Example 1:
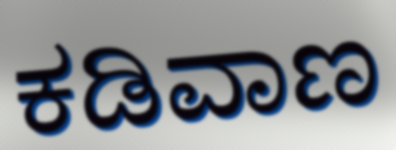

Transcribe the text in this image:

ಕಡಿವಾಣ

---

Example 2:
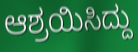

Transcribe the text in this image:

ಆಶ್ರಯಿಸಿದ್ದು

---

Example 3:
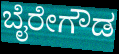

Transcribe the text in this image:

ಬೈರೇಗೌಡ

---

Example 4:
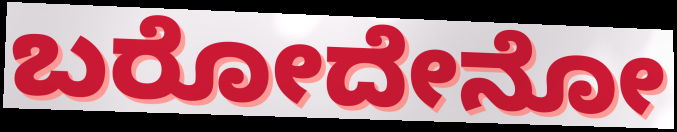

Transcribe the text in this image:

ಬರೋದೇನೋ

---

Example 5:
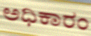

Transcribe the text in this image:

ಅಧಿಕಾರಂ